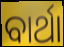
ବାର୍ଥା